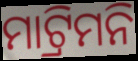
ମାଟ୍ରିମନି